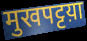
मुखपट्टय़ा